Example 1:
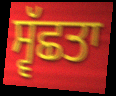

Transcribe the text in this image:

ਸ੍ਵੱਛਤਾ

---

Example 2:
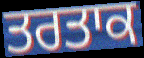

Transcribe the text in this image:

ਤਰਤਾਕ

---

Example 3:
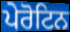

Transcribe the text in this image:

ਪੇਰੋਟਿਨ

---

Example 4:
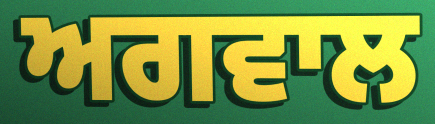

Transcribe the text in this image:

ਅਗਵਾਲ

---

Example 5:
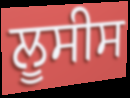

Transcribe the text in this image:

ਲੂਸੀਸ